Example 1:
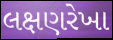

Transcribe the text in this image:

લક્ષણરેખા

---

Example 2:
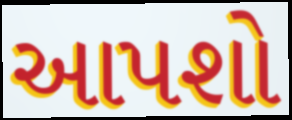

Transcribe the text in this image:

આપશો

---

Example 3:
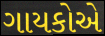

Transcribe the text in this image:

ગાયકોએ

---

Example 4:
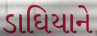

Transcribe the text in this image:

ડાઘિયાને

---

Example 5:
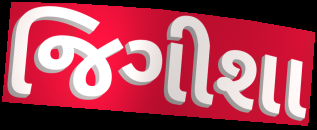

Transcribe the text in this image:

જિગીશા